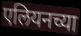
एलियनच्या